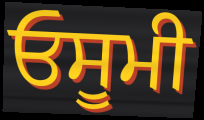
ਓਸੂਮੀ